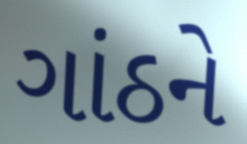
ગાંઠને